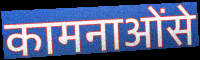
कामनाओंसे